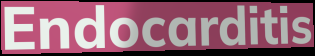
Endocarditis